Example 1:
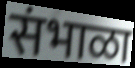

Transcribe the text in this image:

संभाळा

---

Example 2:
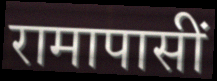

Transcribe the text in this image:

रामापासीं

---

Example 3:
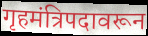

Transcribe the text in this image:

गृहमंत्रिपदावरून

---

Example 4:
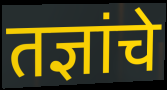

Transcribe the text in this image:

तज्ञांचे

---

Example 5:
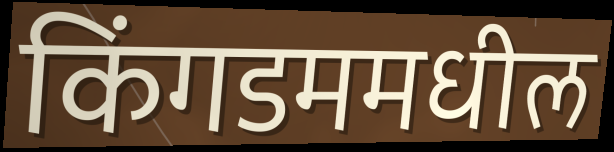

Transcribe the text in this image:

किंगडममधील